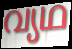
വ്യഥ